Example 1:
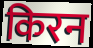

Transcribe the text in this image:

किरन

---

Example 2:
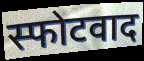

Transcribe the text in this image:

स्फोटवाद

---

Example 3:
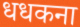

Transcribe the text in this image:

धधकना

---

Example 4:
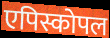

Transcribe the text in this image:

एपिस्कोपल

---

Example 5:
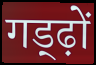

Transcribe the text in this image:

गड्‌ढ़ों